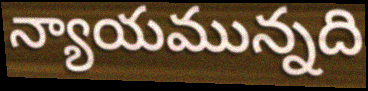
న్యాయమున్నది